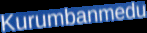
Kurumbanmedu